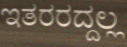
ಇತರರದ್ದಲ್ಲ